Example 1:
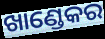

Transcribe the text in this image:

ଖାଣ୍ଡେକର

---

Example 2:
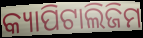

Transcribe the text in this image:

କ୍ୟାପିଟାଲିଜିମ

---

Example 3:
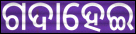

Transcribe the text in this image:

ଗଦାହେଇ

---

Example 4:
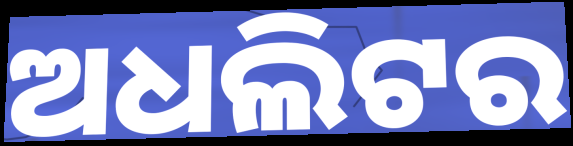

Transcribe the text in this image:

ଅଧଲିଟର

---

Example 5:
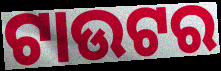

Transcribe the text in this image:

ଟାଉଟର